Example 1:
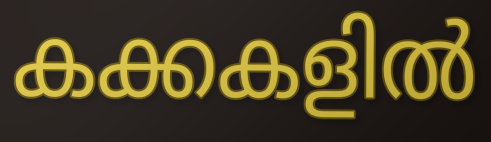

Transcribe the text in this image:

കക്കകളിൽ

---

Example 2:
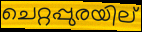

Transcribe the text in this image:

ചെറ്റപ്പുരയില്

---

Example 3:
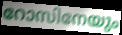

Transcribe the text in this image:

റോസിനേയും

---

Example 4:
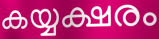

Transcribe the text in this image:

കയ്യക്ഷരം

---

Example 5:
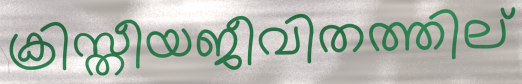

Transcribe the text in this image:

ക്രിസ്തീയജീവിതത്തില്